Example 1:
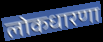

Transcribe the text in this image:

लोकधारणा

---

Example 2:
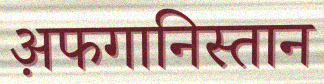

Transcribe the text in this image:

अ़फगानिस्तान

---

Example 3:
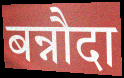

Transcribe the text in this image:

बन्नौदा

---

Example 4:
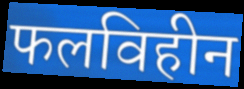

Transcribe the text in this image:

फलविहीन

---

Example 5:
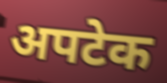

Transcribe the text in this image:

अपटेक